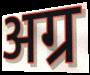
अग्र